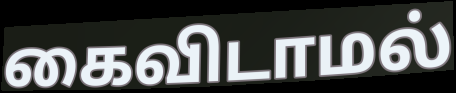
கைவிடாமல்